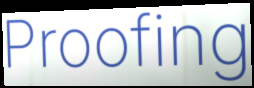
Proofing